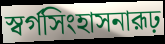
স্বর্গসিংহাসনারূঢ়